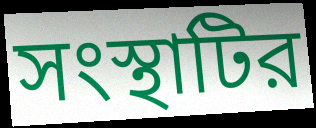
সংস্থাটির